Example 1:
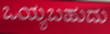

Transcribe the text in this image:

ಒಯ್ಯಬಹುದು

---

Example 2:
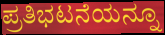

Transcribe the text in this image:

ಪ್ರತಿಭಟನೆಯನ್ನೂ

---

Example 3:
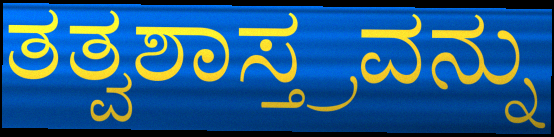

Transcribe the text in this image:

ತತ್ವಶಾಸ್ತ್ರವನ್ನು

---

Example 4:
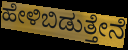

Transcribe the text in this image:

ಹೇಳಿಬಿಡುತ್ತೇನೆ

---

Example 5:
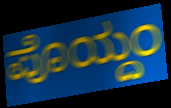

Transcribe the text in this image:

ಪೊಯ್ದಂ